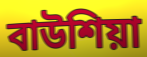
বাউশিয়া